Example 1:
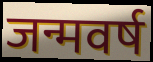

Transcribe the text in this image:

जन्मवर्ष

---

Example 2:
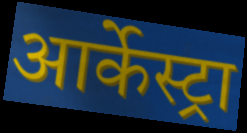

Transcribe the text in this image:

आर्केस्ट्रा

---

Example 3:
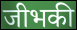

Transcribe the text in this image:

जीभकी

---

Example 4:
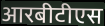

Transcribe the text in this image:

आरबीटीएस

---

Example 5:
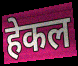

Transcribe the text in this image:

हेकल